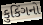
કુકિંગનો